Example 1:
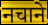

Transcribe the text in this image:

नचाने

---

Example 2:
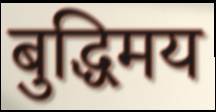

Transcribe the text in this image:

बुद्धिमय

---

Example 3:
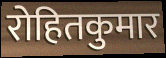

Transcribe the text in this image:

रोहितकुमार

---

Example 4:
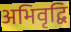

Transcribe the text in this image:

अभिवृद्वि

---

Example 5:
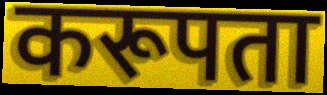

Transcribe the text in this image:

करूपता